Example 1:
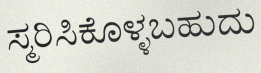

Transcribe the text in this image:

ಸ್ಮರಿಸಿಕೊಳ್ಳಬಹುದು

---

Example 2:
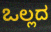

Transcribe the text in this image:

ಒಲ್ಲದ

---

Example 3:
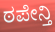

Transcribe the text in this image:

ಠಪೇನ್ತಿ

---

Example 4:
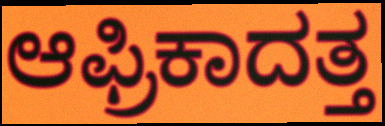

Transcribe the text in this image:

ಆಫ್ರಿಕಾದತ್ತ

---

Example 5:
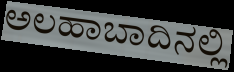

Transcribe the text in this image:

ಅಲಹಾಬಾದಿನಲ್ಲಿ